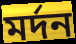
মর্দন